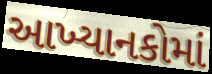
આખ્યાનકોમાં